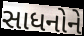
સાધનોને